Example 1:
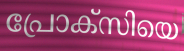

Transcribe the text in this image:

പ്രോക്സിയെ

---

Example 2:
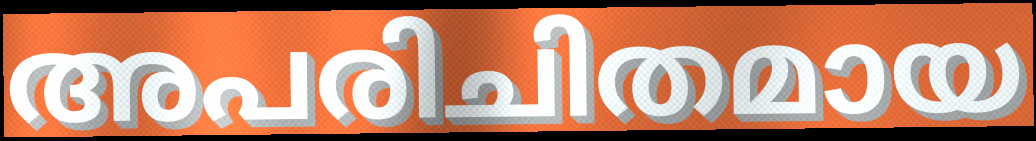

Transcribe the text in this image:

അപരിചിതമായ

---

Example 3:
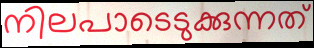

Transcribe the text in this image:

നിലപാടെടുക്കുന്നത്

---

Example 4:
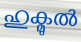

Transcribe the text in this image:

ഹുക്മുൽ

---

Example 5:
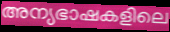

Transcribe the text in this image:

അന്യഭാഷകളിലെ